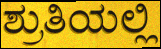
ಶ್ರುತಿಯಲ್ಲಿ